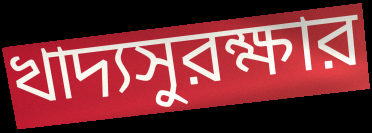
খাদ্যসুরক্ষার